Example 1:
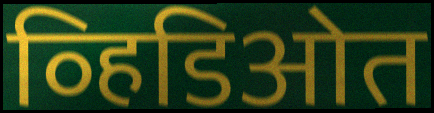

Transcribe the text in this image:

व्हिडिओत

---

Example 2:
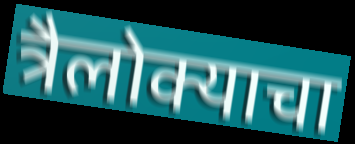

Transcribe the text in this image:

त्रैलोक्याचा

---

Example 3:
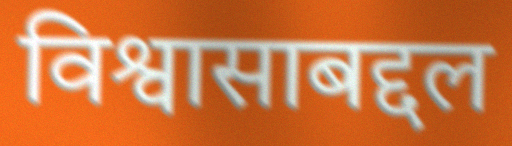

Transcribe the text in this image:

विश्वासाबद्दल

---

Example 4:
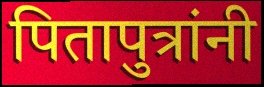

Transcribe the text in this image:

पितापुत्रांनी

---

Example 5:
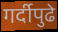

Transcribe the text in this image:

गर्दीपुढे